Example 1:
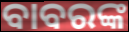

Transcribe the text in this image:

ବାବରଙ୍କ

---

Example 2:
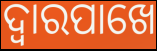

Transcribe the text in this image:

ଦ୍ୱାରପାଖେ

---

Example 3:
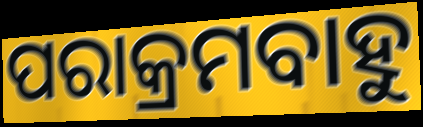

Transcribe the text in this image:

ପରାକ୍ରମବାହୁ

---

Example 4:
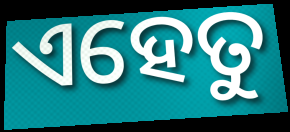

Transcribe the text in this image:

ଏହେତୁ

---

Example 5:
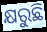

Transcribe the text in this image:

କ୍ଷରୁଛି